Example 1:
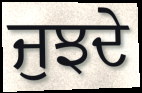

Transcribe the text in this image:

ਜੁਝਦੇ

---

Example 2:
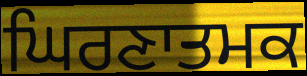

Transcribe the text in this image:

ਘਿਰਣਾਤਮਕ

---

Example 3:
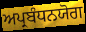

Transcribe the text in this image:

ਅਪ੍ਰਬੰਧਨਯੋਗ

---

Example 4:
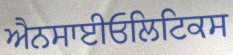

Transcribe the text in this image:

ਐਨਸਾਈਓਲਿਟਿਕਸ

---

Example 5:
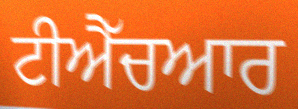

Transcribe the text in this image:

ਟੀਐੱਚਆਰ